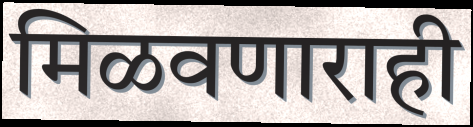
मिळवणाराही